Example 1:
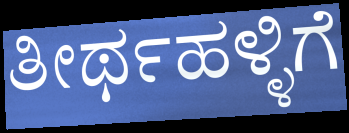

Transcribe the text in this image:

ತೀರ್ಥಹಳ್ಳಿಗೆ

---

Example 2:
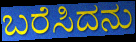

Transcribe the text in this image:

ಬರೆಸಿದನು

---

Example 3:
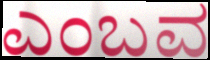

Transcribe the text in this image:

ಎಂಬವ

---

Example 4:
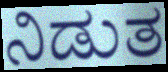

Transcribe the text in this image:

ನಿಡುತ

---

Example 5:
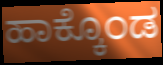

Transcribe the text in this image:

ಹಾಕ್ಕೊಂಡ